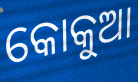
କୋକୁଆ